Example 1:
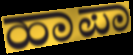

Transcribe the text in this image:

ಹಾಪಾ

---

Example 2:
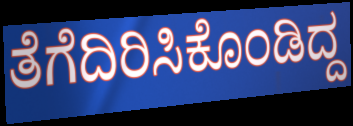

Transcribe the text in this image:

ತೆಗೆದಿರಿಸಿಕೊಂಡಿದ್ದ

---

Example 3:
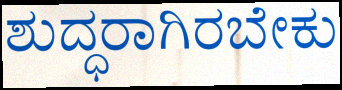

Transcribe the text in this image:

ಶುದ್ಧರಾಗಿರಬೇಕು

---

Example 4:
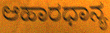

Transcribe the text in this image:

ಆಹಾರಧಾನ್ಯ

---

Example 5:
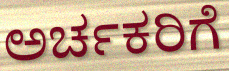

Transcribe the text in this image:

ಅರ್ಚಕರಿಗೆ